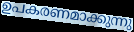
ഉപകരണമാക്കുന്നു